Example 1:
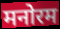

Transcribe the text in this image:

मनोरम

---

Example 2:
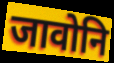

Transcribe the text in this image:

जावोनि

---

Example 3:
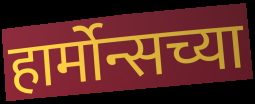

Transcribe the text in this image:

हार्मोन्सच्या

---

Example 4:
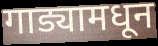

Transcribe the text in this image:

गाड्यामधून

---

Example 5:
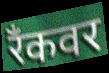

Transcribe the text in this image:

रँकवर